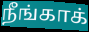
நீங்காக்